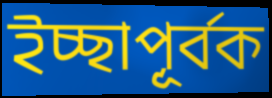
ইচ্ছাপূর্বক